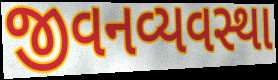
જીવનવ્યવસ્થા